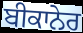
ਬੀਕਾਨੇਰ